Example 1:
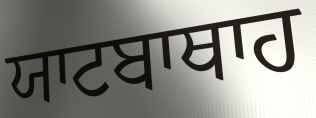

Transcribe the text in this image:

ਯਾਟਬਾਥਾਹ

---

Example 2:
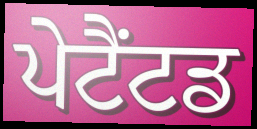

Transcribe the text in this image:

ਪੇਟੈਂਟਡ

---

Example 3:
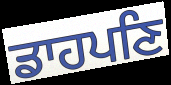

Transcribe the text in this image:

ਡਾਹਪਣਿ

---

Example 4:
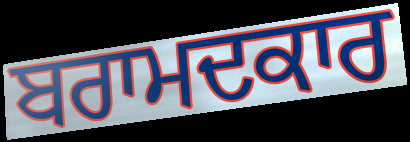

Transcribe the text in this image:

ਬਰਾਮਦਕਾਰ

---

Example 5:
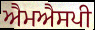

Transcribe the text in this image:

ਐਮਐਸਪੀ